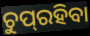
ଚୁପ୍‌ରହିବା